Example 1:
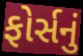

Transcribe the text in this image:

ફોર્સનું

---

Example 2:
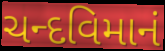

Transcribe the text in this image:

ચન્દવિમાનં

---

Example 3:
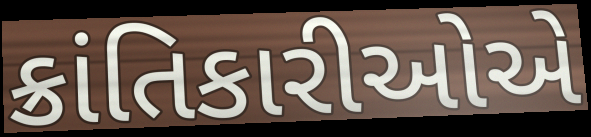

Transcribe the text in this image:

ક્રાંતિકારીઓએ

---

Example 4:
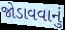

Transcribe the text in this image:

જોડાવવાનું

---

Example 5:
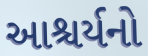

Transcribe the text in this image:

આશ્ચર્યનો